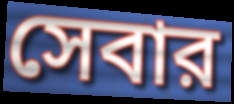
সেবার